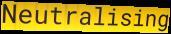
Neutralising